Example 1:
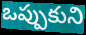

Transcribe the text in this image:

ఒప్పుకుని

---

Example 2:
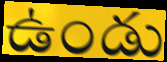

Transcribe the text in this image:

ఉండు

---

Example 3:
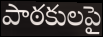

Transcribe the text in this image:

పాఠకులపై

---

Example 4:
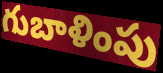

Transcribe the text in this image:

గుబాళింపు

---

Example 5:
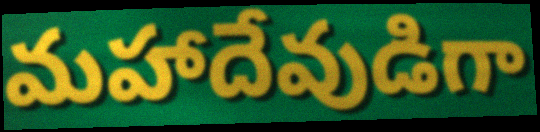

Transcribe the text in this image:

మహాదేవుడిగా